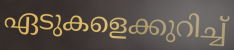
ഏടുകളെക്കുറിച്ച്